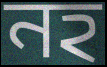
নহ